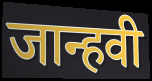
जान्हवी